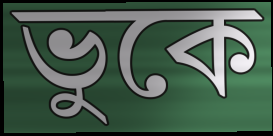
ভুকে